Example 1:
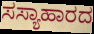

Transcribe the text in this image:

ಸಸ್ಯಾಹಾರದ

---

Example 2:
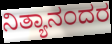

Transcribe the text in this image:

ನಿತ್ಯಾನಂದರ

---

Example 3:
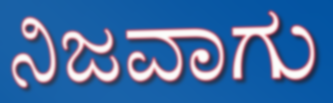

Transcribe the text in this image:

ನಿಜವಾಗು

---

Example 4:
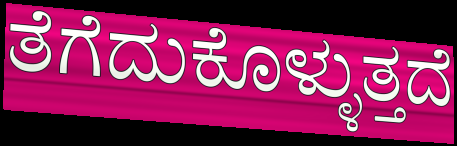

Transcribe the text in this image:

ತೆಗೆದುಕೊಳ್ಳುತ್ತದೆ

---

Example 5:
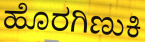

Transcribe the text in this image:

ಹೊರಗಿಣುಕಿ